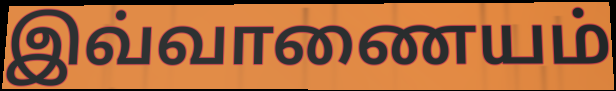
இவ்வாணையம்